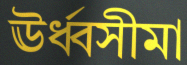
ঊর্ধ্বসীমা